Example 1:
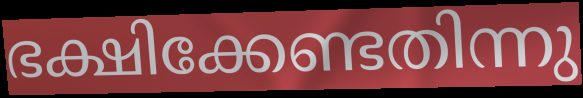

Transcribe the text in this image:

ഭക്ഷിക്കേണ്ടതിന്നു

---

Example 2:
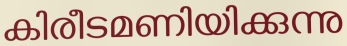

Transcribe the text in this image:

കിരീടമണിയിക്കുന്നു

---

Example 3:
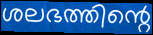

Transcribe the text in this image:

ശലഭത്തിന്റെ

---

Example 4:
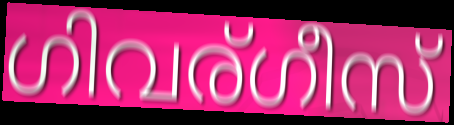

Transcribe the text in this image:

ഗിവര്ഗീസ്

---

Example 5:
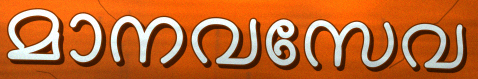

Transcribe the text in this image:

മാനവസേവ